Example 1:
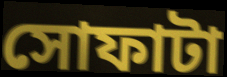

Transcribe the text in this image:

সোফাটা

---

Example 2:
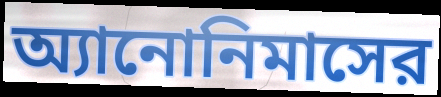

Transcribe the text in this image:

অ্যানোনিমাসের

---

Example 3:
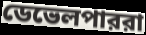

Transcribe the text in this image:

ডেভেলপাররা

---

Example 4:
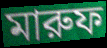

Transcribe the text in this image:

মারুফ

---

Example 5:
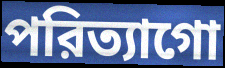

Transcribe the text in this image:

পরিত্যাগো